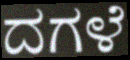
ದಗಳೆ